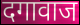
दगावाज